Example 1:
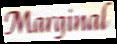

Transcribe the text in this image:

Marginal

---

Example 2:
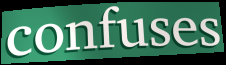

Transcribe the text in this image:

confuses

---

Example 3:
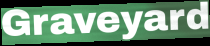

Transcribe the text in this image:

Graveyard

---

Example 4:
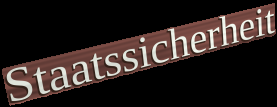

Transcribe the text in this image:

Staatssicherheit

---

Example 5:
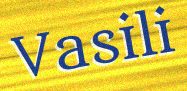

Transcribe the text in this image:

Vasili